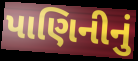
પાણિનીનું